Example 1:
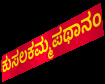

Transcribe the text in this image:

ಕುಸಲಕಮ್ಮಪಥಾನಂ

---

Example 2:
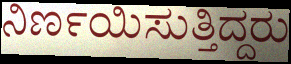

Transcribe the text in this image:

ನಿರ್ಣಯಿಸುತ್ತಿದ್ದರು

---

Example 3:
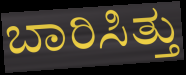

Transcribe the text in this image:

ಬಾರಿಸಿತ್ತು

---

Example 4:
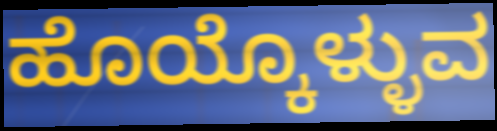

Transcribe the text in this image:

ಹೊಯ್ಕೊಳ್ಳುವ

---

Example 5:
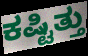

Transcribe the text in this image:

ಕಷ್ಟಿತ್ತು